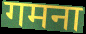
गमना